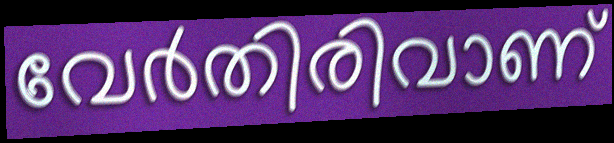
വേർതിരിവാണ്